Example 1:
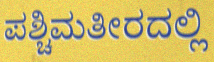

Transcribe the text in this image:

ಪಶ್ಚಿಮತೀರದಲ್ಲಿ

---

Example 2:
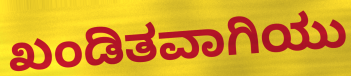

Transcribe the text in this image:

ಖಂಡಿತವಾಗಿಯು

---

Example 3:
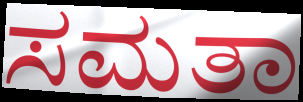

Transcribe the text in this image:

ಸಮತಾ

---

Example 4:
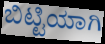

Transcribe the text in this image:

ಬಿಟ್ಟಿಯಾಗಿ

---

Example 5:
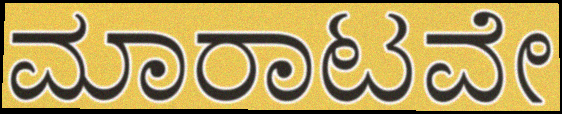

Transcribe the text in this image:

ಮಾರಾಟವೇ